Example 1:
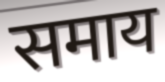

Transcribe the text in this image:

समाय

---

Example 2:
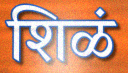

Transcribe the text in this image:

शिळं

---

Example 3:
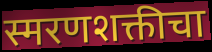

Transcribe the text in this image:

स्मरणशक्तीचा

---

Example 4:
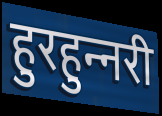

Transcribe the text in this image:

हुरहुन्नरी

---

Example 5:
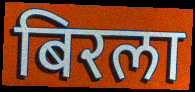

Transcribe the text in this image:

बिरला